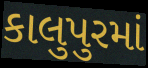
કાલુપુરમાં